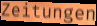
Zeitungen